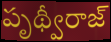
పృథ్వీరాజ్